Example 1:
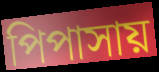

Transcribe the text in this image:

পিপাসায়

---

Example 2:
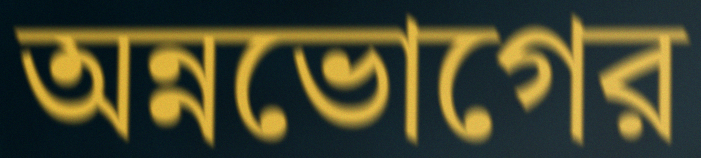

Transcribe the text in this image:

অন্নভোগের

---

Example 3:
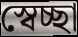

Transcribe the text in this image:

স্বেচ্ছা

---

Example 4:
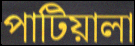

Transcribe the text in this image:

পাটিয়ালা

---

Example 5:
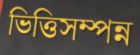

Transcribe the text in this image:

ভিত্তিসম্পন্ন